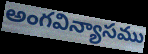
అంగవిన్యాసము